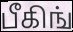
பீகிங்